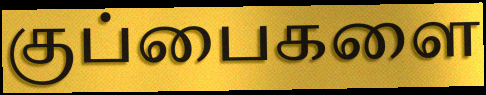
குப்பைகளை